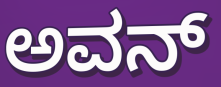
ಅವನ್